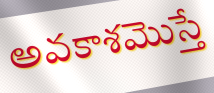
అవకాశమొస్తే